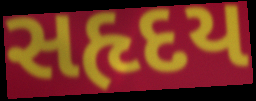
સહૃદય